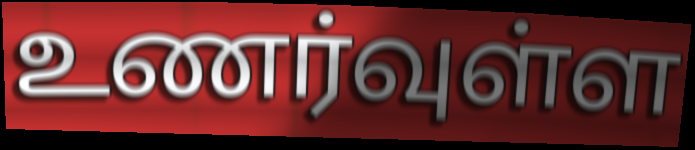
உணர்வுள்ள